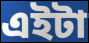
এইটা